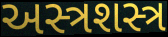
અસ્ત્રશસ્ત્ર